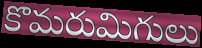
కొమరుమిగులు